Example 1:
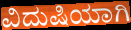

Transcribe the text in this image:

ವಿದುಷಿಯಾಗಿ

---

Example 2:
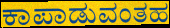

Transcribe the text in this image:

ಕಾಪಾಡುವಂತಹ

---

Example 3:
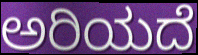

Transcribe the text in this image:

ಅರಿಯದೆ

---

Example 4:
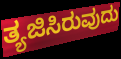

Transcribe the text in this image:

ತ್ಯಜಿಸಿರುವುದು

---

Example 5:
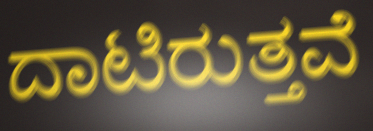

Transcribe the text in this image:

ದಾಟಿರುತ್ತವೆ